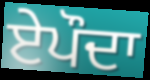
ਏਪੌਦਾ